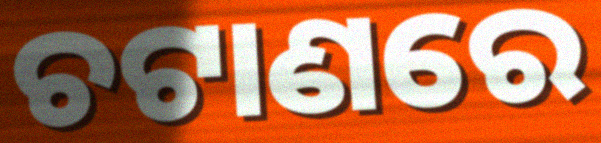
ଚଟାଣରେ